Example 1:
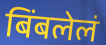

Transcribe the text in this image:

बिंबलेलं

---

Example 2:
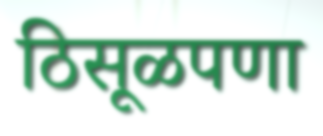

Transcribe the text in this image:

ठिसूळपणा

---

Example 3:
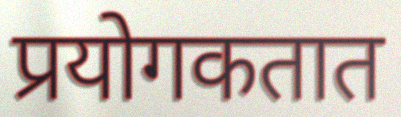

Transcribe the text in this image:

प्रयोगकतात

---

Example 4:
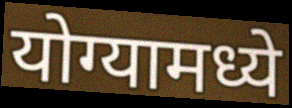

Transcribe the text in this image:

योग्यामध्ये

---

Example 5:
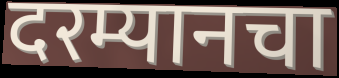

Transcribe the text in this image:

दरम्यानचा